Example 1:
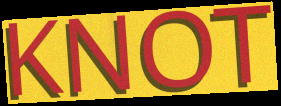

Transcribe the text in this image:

KNOT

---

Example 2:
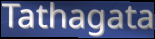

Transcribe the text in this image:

Tathagata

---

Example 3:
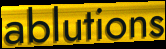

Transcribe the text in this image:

ablutions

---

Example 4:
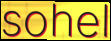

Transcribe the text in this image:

sohel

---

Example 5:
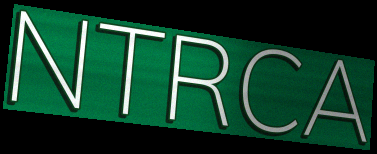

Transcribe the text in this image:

NTRCA